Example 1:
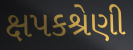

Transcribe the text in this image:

ક્ષપકશ્રેણી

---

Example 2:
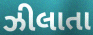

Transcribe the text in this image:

ઝીલાતા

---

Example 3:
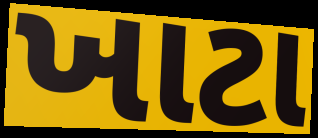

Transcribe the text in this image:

ખાટા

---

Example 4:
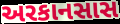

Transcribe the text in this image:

અરકાનસાસ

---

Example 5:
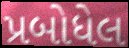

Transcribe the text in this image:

પ્રબોધેલ